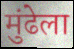
मुंढेला